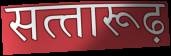
सत्‍तारूढ़